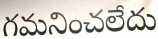
గమనించలేదు